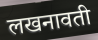
लखनावती